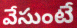
వేసుంటే